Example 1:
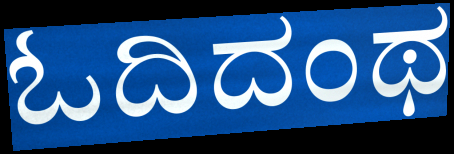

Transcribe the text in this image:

ಓದಿದಂಥ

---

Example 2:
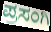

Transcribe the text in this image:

ಪ್ರಸಂಗಿ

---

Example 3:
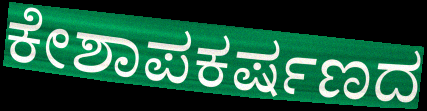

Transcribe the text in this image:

ಕೇಶಾಪಕರ್ಷಣದ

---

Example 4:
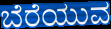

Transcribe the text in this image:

ಬೆರೆಯುವ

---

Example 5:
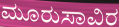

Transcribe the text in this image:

ಮೂರುಸಾವಿರ